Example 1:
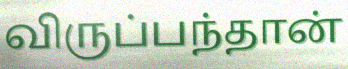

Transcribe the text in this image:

விருப்பந்தான்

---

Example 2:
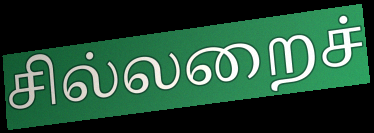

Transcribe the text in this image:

சில்லறைச்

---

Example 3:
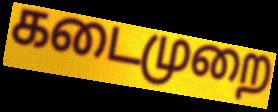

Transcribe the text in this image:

கடைமுறை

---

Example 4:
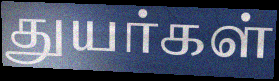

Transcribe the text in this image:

துயர்கள்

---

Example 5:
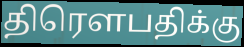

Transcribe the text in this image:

திரௌபதிக்கு